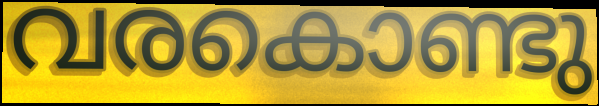
വരകൊണ്ടു